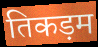
तिकड़म